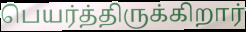
பெயர்த்திருக்கிறார்